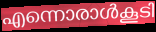
എന്നൊരാൾകൂടി